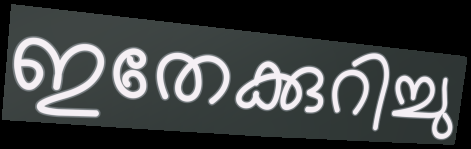
ഇതേക്കുറിച്ചു